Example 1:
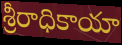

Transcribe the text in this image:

శ్రీరాధికాయా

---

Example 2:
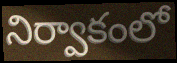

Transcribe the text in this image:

నిర్వాకంలో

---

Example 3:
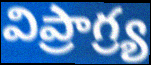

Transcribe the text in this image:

విప్రాగ్ర్య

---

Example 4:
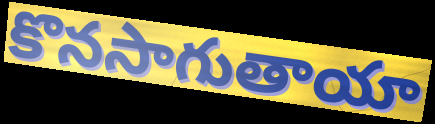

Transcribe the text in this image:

కొనసాగుతాయా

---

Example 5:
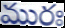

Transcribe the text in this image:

మురః